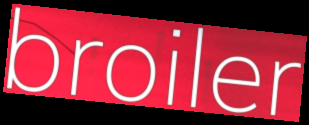
broiler